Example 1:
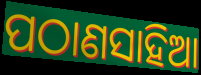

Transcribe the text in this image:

ପଠାଣସାହିଆ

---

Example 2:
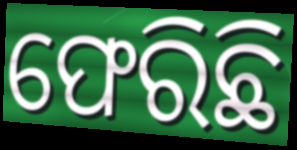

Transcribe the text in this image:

ଫେରିଛି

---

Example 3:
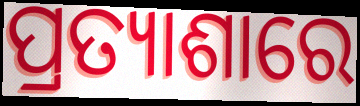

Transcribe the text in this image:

ପ୍ରତ୍ୟାଶାରେ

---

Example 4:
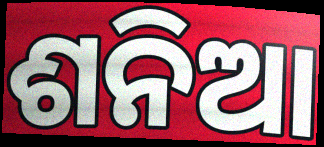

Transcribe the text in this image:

ଶନିଆ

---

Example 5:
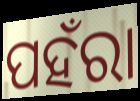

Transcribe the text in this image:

ପହଁରା